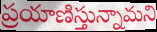
ప్రయాణిస్తున్నామని